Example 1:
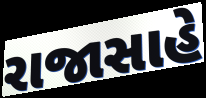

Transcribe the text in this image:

રાજાસાહે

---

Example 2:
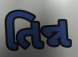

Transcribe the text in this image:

તિન્ન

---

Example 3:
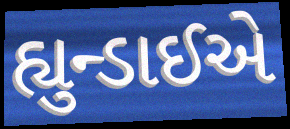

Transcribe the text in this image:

હ્યુન્ડાઈએ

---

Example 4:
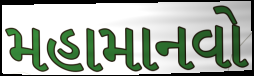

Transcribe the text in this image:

મહામાનવો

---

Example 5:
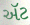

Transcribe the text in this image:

ઍટ